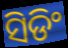
ସିଡିଂ